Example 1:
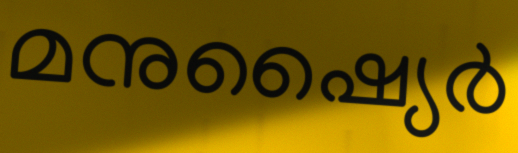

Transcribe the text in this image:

മനുഷ്യൈർ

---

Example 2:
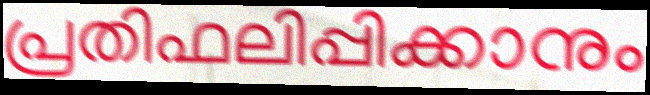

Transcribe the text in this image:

പ്രതിഫലിപ്പിക്കാനും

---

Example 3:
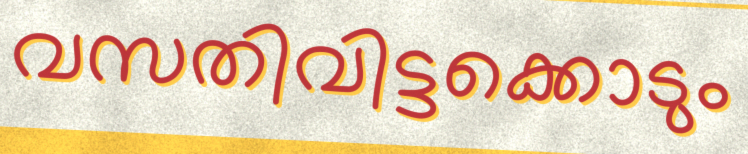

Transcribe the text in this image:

വസതിവിട്ടക്കൊടും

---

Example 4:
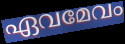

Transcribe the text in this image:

ഏവമേവം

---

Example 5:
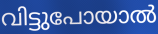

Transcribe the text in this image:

വിട്ടുപോയാൽ